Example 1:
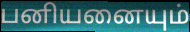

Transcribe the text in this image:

பனியனையும்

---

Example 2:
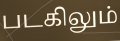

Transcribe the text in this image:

படகிலும்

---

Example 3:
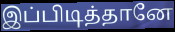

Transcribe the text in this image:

இப்பிடித்தானே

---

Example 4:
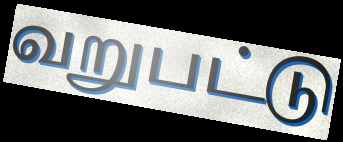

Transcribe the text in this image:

வறுபட்டு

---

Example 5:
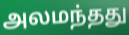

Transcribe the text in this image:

அலமந்தது